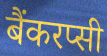
बैंकरप्सी